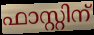
ഫാസ്റ്റിന്